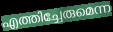
എത്തിച്ചേരുമെന്ന